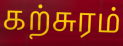
கற்சுரம்